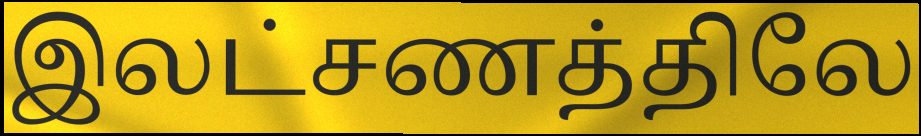
இலட்சணத்திலே